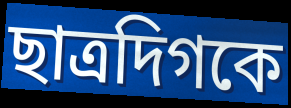
ছাত্রদিগকে